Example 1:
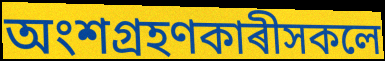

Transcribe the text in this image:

অংশগ্ৰহণকাৰীসকলে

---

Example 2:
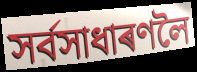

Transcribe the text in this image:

সৰ্বসাধাৰণলৈ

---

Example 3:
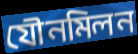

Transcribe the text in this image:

যৌনমিলন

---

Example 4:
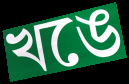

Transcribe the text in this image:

খঙে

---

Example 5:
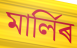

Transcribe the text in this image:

মাৰ্লিৰ